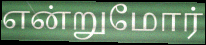
என்றுமோர்